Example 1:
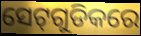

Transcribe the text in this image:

ସେଟ୍‌ଗୁଡିକରେ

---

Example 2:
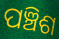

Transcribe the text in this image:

ପଞ୍ଚିଶ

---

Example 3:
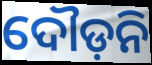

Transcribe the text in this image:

ଦୌଡ଼ନି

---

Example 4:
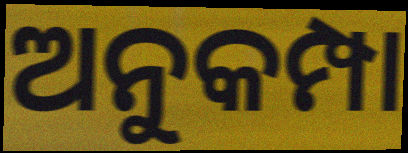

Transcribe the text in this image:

ଅନୁକମ୍ପା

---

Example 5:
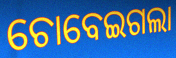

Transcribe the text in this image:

ଚୋବେଇଗଲା